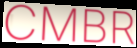
CMBR